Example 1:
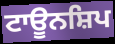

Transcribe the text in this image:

ਟਾਊਨਸ਼ਿਪ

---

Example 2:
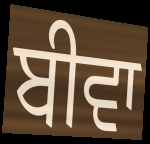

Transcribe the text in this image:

ਬੀਵਾ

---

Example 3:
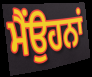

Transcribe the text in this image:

ਮੈਂਉਹਨਾਂ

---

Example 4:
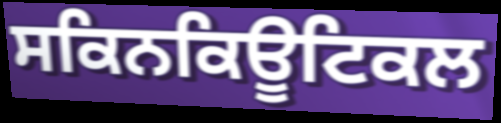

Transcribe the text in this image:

ਸਕਿਨਕਿਊਟਿਕਲ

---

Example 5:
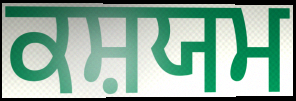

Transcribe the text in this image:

ਕਸ਼ਯਮ